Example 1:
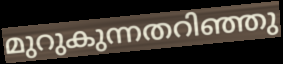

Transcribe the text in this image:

മുറുകുന്നതറിഞ്ഞു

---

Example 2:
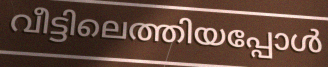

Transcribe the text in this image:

വീട്ടിലെത്തിയപ്പോൾ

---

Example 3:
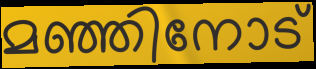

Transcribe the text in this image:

മഞ്ഞിനോട്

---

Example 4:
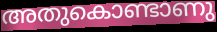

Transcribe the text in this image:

അതുകൊണ്ടാണു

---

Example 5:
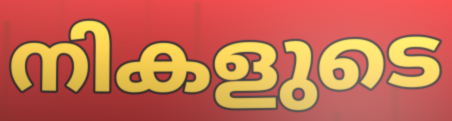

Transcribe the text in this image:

നികളുടെ